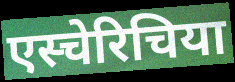
एस्चेरिचिया